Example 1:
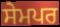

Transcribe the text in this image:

ਸੇਮਪਰ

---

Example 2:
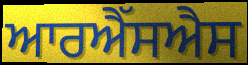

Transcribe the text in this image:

ਆਰਐੱਸਐਸ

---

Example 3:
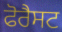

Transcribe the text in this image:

ਫੋਰੈਸਟ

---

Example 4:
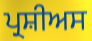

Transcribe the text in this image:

ਪ੍ਰਸ਼ੀਅਸ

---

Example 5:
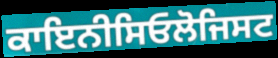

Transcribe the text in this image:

ਕਾਇਨੀਸਿਓਲੋਜਿਸਟ